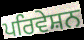
ਪਰਿਵੇਸ਼ਨ